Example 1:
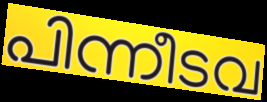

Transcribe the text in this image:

പിന്നീടവ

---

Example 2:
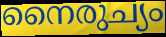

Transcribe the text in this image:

നൈരുച്യം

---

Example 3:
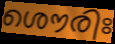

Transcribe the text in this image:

ശൌരിഃ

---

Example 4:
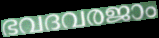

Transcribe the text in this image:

ഭവദവരജാം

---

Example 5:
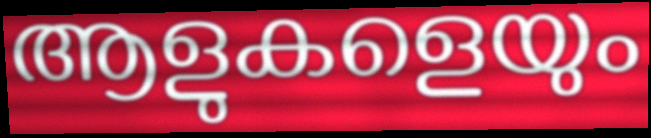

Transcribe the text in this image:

ആളുകളെയും